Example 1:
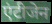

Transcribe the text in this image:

एंटीजेन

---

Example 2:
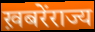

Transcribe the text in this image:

ख़बरेंराज्य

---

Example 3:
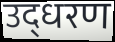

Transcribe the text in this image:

उद्धरण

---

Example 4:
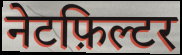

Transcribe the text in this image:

नेटफ़िल्टर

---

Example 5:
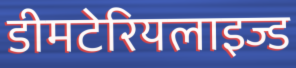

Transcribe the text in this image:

डीमटेरियलाइज्ड